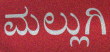
ಮಲ್ಲುಗಿ